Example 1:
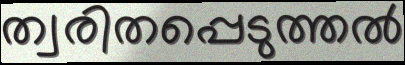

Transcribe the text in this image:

ത്വരിതപ്പെടുത്തൽ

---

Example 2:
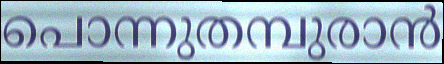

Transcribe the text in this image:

പൊന്നുതമ്പുരാൻ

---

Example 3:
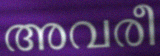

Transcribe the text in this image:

അവരീ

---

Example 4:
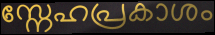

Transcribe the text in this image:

സ്നേഹപ്രകാശം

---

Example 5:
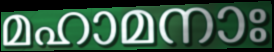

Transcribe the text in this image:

മഹാമനാഃ